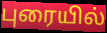
புரையில்